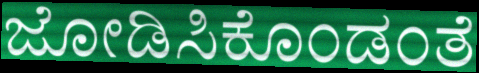
ಜೋಡಿಸಿಕೊಂಡಂತೆ